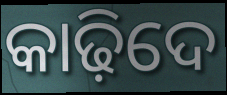
କାଢ଼ିଦେ